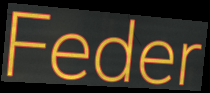
Feder